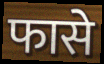
फासे